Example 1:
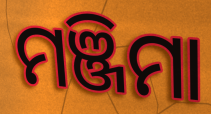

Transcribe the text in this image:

ମଞ୍ଜିମା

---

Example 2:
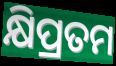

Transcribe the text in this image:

କ୍ଷିପ୍ରତମ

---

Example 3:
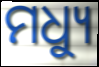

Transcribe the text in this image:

ମଧ୍ୟୁ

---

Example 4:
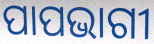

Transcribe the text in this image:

ପାପଭାଗୀ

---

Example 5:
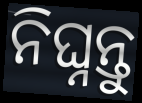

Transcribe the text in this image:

ନିଘ୍ନନ୍ତୁ